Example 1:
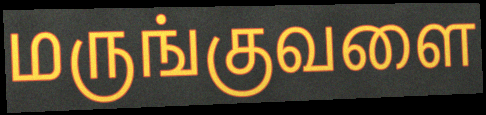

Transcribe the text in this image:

மருங்குவளை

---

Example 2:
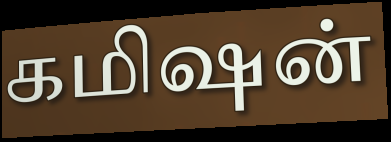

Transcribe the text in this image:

கமிஷன்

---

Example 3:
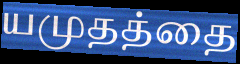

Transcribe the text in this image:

யமுதத்தை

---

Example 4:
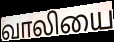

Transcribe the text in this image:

வாலியை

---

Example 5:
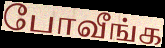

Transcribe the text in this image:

போவீங்க